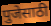
पुजेसाठी